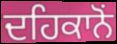
ਦਹਿਕਾਨੋਂ